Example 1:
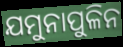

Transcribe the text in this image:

ଯମୁନାପୁଳିନ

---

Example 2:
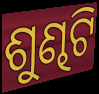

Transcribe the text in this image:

ଶୁଣ୍ଢଟି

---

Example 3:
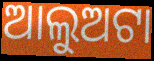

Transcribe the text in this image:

ଆଲୁଅଟା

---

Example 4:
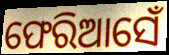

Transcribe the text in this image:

ଫେରିଆସେଁ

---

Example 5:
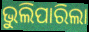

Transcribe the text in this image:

ଭୁଲିପାରିଲା